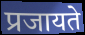
प्रजायते